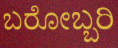
ಬರೋಬ್ಬರಿ